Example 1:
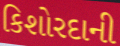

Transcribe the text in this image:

કિશોરદાની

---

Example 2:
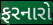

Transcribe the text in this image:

ફરનારો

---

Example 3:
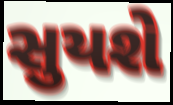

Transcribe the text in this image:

સુયશે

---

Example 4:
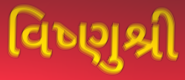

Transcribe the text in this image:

વિષ્ણુશ્રી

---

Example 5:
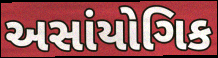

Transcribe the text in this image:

અસાંયોગિક